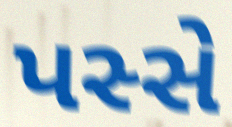
પસ્સે